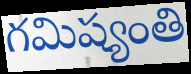
గమిష్యంతి